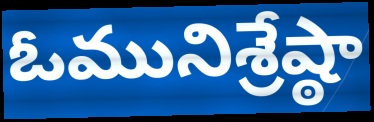
ఓమునిశ్రేష్ఠా